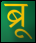
ब्रू